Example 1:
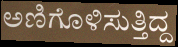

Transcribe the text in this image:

ಅಣಿಗೊಳಿಸುತ್ತಿದ್ದ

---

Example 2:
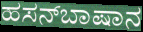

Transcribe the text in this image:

ಹಸನ್‌ಬಾಷಾನ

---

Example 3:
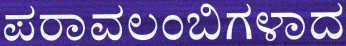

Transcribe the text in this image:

ಪರಾವಲಂಬಿಗಳಾದ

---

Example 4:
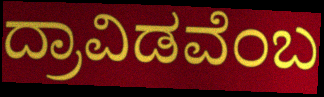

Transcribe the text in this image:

ದ್ರಾವಿಡವೆಂಬ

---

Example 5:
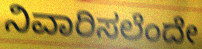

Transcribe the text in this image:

ನಿವಾರಿಸಲೆಂದೇ